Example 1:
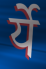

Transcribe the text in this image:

र्ये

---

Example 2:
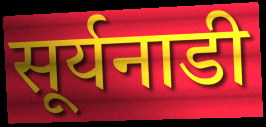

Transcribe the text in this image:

सूर्यनाडी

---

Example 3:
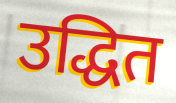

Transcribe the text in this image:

उद्धित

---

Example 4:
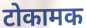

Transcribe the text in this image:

टोकामक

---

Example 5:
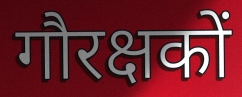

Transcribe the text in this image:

गौरक्षकों